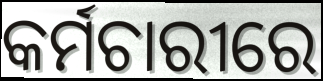
କର୍ମଚାରୀରେ